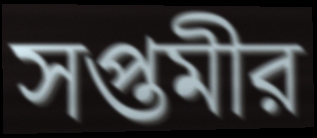
সপ্তমীর